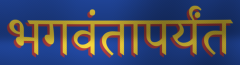
भगवंतापर्यंत